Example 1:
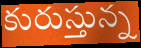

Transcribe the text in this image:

కురుస్తున్న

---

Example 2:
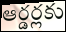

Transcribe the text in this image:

ఆర్డర్లకు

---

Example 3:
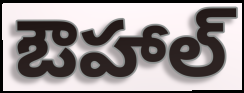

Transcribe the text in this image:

ఔహాల్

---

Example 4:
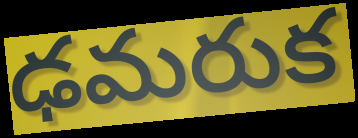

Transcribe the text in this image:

ఢమరుక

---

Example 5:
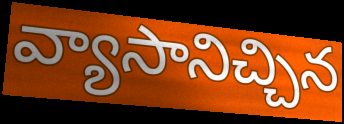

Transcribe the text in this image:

వ్యాసానిచ్చిన